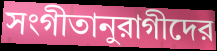
সংগীতানুরাগীদের